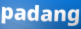
padang